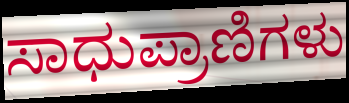
ಸಾಧುಪ್ರಾಣಿಗಳು